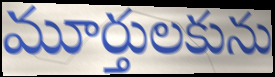
మూర్తులకును